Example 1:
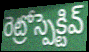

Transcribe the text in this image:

రెట్రోస్పెక్టివ్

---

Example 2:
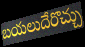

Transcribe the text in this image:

బయలుదేరొచ్చు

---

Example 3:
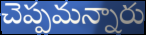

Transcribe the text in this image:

చెప్పమన్నారు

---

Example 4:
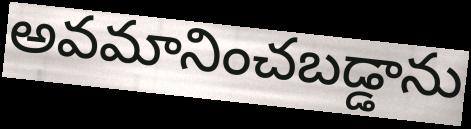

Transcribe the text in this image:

అవమానించబడ్డాను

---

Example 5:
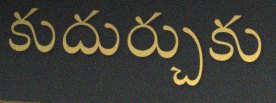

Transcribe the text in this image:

కుదుర్చుకు